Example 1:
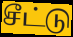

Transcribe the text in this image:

சீட்டு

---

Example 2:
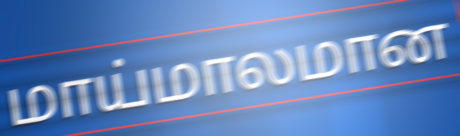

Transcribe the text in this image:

மாய்மாலமான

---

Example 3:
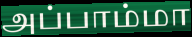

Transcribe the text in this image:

அப்பாம்மா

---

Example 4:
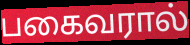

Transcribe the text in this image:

பகைவரால்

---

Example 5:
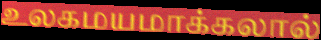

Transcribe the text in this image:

உலகமயமாக்கலால்